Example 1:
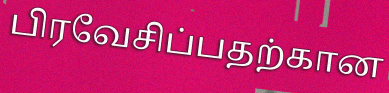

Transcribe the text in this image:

பிரவேசிப்பதற்கான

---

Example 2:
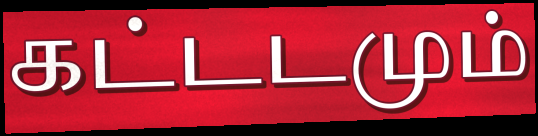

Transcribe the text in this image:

கட்டடமும்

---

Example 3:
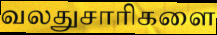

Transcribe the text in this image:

வலதுசாரிகளை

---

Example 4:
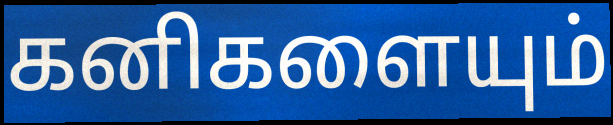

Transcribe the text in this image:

கனிகளையும்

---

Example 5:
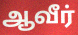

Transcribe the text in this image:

ஆவீர்